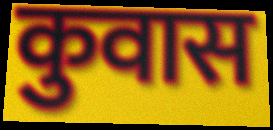
कुवास